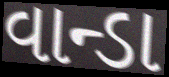
વાન્ડા